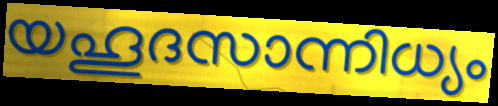
യഹൂദസാന്നിധ്യം